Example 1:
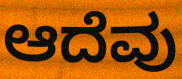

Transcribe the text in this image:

ಆದೆವು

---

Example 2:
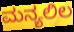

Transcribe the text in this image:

ಮನ್ಯಲಿಲ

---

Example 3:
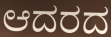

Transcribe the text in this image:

ಆದರದ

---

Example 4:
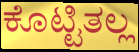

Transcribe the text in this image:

ಕೊಟ್ಟಿತಲ್ಲ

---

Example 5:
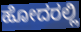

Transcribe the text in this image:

ಹೋದರಲ್ಲಿ